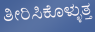
ತೀರಿಸಿಕೊಳ್ಳುತ್ತ